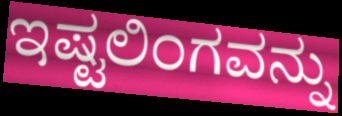
ಇಷ್ಟಲಿಂಗವನ್ನು